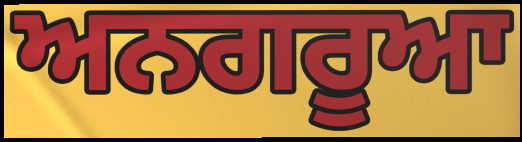
ਅਨਗਰੂਆ